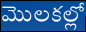
మొలకల్లో